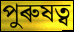
পুৰুষত্ব